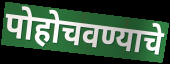
पोहोचवण्याचे